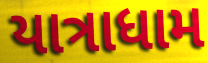
યાત્રાધામ